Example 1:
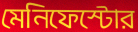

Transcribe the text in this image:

মেনিফেস্টোর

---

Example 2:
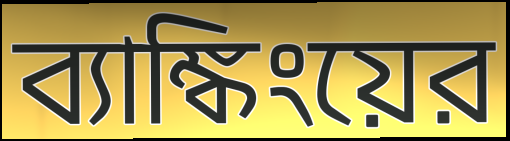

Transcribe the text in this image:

ব্যাঙ্কিংয়ের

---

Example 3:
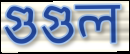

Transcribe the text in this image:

গুগুল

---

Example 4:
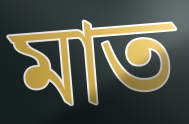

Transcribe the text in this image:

মাত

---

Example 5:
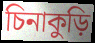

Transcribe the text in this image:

চিনাকুড়ি